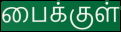
பைக்குள்